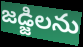
జడ్జిలను